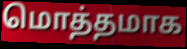
மொத்தமாக